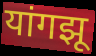
यांगझू